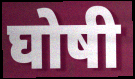
घोषी